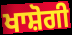
ਖਾਸ਼ੋਗੀ